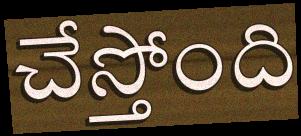
చేస్తోంది